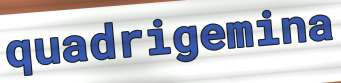
quadrigemina